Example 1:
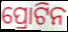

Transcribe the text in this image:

ପ୍ରୋଟିନ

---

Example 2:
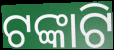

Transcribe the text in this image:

ଟଙ୍କାଟି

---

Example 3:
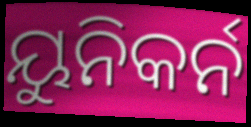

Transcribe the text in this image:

ୟୁନିକର୍ନ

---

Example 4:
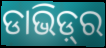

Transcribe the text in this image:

ଡାଭିଡ଼୍‍ର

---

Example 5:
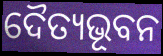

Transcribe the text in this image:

ଦୈତ୍ୟଭୂବନ